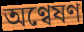
অণ্বেষণ